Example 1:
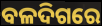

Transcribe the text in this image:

ବଳଦିଗରେ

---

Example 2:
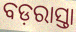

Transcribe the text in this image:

ବଡ଼ରାସ୍ତା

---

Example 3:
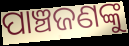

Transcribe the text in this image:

ପାଞ୍ଚଜଣଙ୍କୁ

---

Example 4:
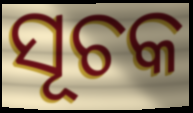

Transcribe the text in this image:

ସୂଚକ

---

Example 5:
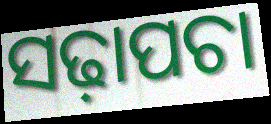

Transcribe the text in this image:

ସଢ଼ାପଚା